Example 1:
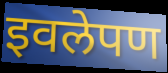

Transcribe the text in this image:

इवलेपण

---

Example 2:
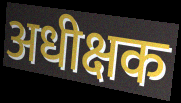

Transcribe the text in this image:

अधीक्षक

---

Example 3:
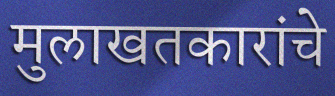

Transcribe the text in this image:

मुलाखतकारांचे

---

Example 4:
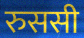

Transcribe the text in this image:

रुससी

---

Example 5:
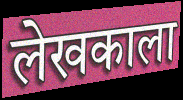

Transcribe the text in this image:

लेखकाला